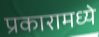
प्रकारामध्ये